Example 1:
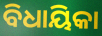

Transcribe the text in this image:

ବିଧାୟିକା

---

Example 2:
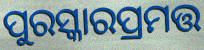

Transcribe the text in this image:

ପୁରସ୍କାରପ୍ରମତ୍ତ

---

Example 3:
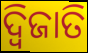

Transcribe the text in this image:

ଦ୍ୱିଜାତି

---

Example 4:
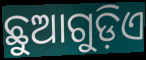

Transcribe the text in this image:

ଛୁଆଗୁଡ଼ିଏ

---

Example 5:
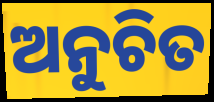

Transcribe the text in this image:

ଅନୁଚିତ